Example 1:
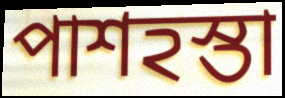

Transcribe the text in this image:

পাশহস্তা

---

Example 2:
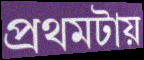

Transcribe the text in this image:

প্রথমটায়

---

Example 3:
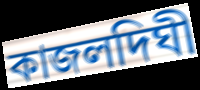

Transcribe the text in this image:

কাজলদিঘী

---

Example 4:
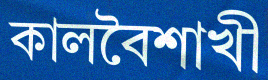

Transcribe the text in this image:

কালবৈশাখী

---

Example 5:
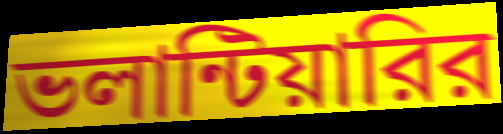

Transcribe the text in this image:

ভলান্টিয়ারির